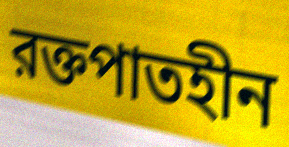
রক্তপাতহীন